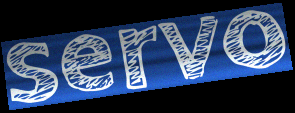
servo